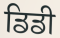
ਡਿਡੀ